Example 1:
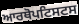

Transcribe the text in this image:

ਆਰਥੋਪਟਿਸਟਸ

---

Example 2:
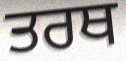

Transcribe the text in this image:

ਤਰਥ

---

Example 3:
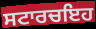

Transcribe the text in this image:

ਸਟਾਰਚਇਹ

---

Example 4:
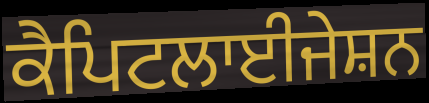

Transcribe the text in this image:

ਕੈਪਿਟਲਾਈਜੇਸ਼ਨ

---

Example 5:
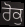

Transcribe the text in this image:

ਰੋਕੁ